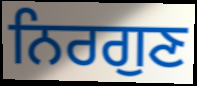
ਨਿਰਗੁਣ